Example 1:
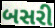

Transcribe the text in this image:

બસરી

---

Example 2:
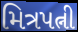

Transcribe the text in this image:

મિત્રપત્ની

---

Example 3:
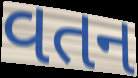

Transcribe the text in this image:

વતન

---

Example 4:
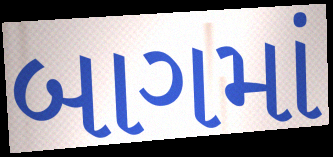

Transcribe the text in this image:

બાગમાં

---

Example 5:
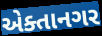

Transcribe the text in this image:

એક્તાનગર